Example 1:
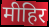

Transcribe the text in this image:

मीहिर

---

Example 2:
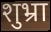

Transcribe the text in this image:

शुभ्रा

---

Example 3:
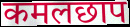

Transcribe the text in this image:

कमलछाप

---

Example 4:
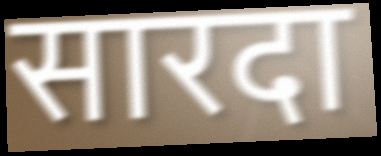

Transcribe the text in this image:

सारदा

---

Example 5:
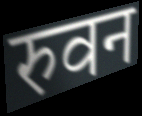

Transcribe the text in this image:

रुवन